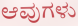
ಆವುಗಳು